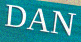
DAN